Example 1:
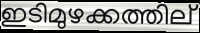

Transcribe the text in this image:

ഇടിമുഴക്കത്തില്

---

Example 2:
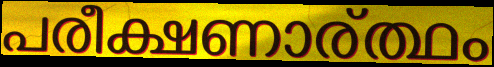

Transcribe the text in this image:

പരീക്ഷണാര്ത്ഥം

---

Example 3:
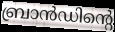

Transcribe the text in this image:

ബ്രാൻഡിന്റെ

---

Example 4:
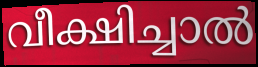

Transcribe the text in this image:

വീക്ഷിച്ചാൽ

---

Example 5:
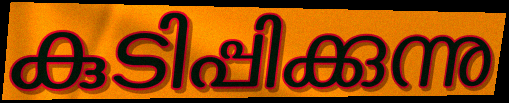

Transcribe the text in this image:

കുടിപ്പിക്കുന്നു